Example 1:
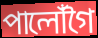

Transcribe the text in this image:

পালোঁগৈ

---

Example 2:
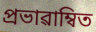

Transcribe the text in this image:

প্ৰভাৱাম্বিত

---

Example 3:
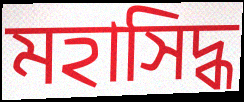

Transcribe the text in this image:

মহাসিদ্ধ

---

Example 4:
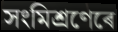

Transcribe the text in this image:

সংমিশ্ৰণেৰে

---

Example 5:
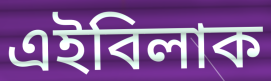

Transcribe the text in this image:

এইবিলাক